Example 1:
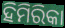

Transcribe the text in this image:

ହିମିରିକା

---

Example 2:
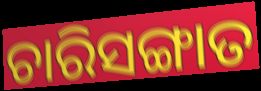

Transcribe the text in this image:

ଚାରିସଙ୍ଗାତ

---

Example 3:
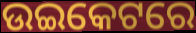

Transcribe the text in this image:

ଉଇକେଟରେ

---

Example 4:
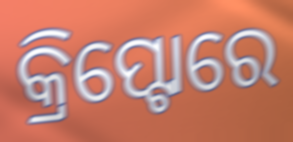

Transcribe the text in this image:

କ୍ରିପ୍ଟୋରେ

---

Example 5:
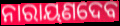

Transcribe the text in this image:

ନାରାୟଣଦେବ